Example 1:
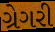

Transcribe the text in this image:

ગ્રેગરી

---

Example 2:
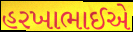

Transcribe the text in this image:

હરખાભાઈએ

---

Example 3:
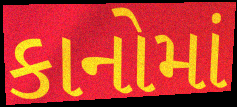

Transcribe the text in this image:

કાનોમાં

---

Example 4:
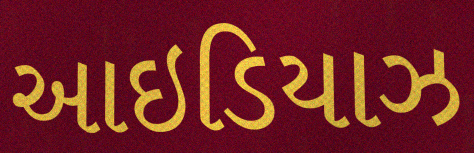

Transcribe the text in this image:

આઇડિયાઝ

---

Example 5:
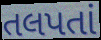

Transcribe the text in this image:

તલપતાં